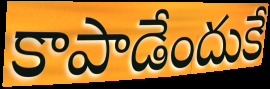
కాపాడేందుకే